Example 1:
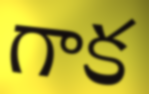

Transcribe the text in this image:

గాక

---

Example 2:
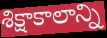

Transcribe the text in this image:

శిక్షాకాలాన్ని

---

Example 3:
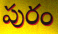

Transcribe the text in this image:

పురం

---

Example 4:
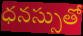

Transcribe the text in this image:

ధనస్సుతో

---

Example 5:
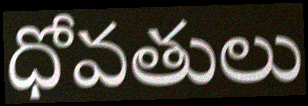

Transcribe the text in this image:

ధోవతులు